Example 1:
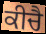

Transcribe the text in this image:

ਕੀਚੈ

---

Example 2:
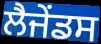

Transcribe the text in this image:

ਲੈਜੇਂਡਸ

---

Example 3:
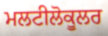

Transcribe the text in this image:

ਮਲਟੀਲੋਕੂਲਰ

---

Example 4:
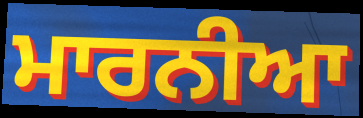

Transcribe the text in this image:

ਮਾਰਨੀਆ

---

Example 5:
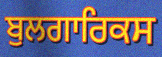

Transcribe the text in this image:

ਬੁਲਗਾਰਿਕਸ